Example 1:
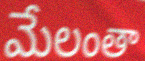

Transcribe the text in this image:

మేలంతా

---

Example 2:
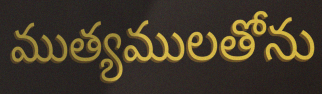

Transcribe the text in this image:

ముత్యములతోను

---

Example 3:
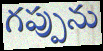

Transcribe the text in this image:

గప్పును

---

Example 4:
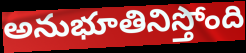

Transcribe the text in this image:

అనుభూతినిస్తోంది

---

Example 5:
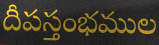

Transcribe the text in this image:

దీపస్తంభముల